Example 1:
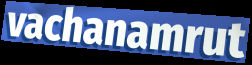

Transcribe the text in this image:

vachanamrut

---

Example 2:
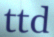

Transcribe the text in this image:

ttd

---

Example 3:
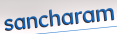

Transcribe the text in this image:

sancharam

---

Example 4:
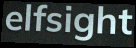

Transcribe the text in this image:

elfsight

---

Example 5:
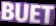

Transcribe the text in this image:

BUET